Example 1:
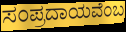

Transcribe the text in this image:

ಸಂಪ್ರದಾಯವೆಂಬ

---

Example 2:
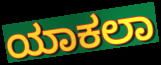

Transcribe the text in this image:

ಯಾಕಲಾ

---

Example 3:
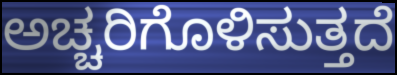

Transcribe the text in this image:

ಅಚ್ಚರಿಗೊಳಿಸುತ್ತದೆ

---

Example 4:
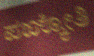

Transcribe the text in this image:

ಪಙ್ಕೋತಿ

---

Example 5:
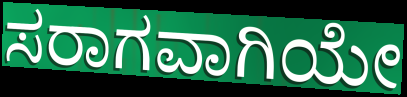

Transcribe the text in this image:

ಸರಾಗವಾಗಿಯೇ